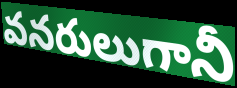
వనరులుగానీ